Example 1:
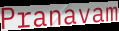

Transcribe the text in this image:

Pranavam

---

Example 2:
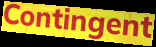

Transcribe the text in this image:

Contingent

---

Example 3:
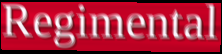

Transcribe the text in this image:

Regimental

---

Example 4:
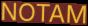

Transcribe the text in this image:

NOTAM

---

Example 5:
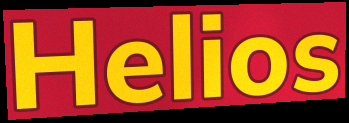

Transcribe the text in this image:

Helios